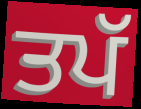
ਤਪੱ